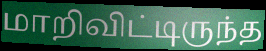
மாறிவிட்டிருந்த